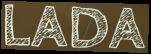
LADA